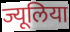
ज्यूलिया